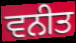
ਵਨੀਤ